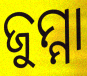
ଜୁମ୍ମା